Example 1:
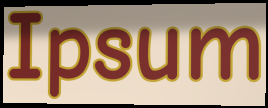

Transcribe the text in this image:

Ipsum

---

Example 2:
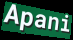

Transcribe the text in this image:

Apani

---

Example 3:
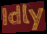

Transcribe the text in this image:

Idly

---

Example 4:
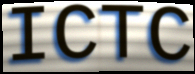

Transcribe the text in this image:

ICTC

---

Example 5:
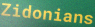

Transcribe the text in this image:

Zidonians